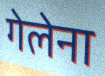
गेलेना